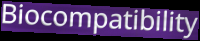
Biocompatibility